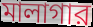
মালাগার